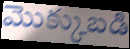
మొక్కుబడి